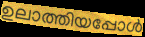
ഉലാത്തിയപ്പോൾ